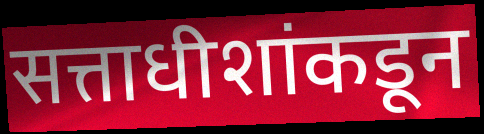
सत्ताधीशांकडून